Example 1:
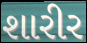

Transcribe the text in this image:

શારીર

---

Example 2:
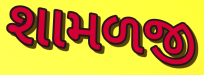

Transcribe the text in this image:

શામળજી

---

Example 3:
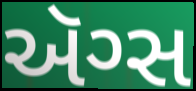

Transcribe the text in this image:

ઍગ્સ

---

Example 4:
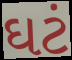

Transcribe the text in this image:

ઘટં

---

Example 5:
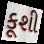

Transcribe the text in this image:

કૂશી